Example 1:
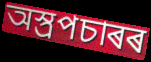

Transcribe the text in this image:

অস্ত্ৰপচাৰৰ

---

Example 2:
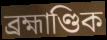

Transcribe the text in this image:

ব্ৰহ্মাণ্ডিক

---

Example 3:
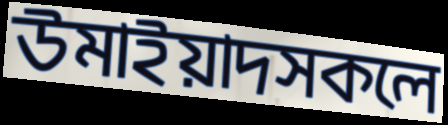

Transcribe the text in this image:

উমাইয়াদসকলে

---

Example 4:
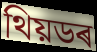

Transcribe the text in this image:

থিয়ডৰ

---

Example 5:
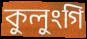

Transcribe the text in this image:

কুলুংগি